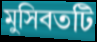
মুসিবতটি